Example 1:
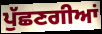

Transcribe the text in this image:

ਪੁੱਛਣਗੀਆਂ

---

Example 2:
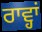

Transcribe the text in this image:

ਰਾਵ੍ਹਾਂ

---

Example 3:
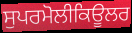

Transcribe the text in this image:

ਸੁਪਰਮੋਲੀਕਿਊਲਰ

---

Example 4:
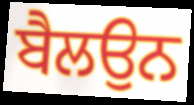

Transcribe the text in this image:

ਬੈਲਉਨ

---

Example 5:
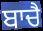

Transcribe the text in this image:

ਬਾਚੈ